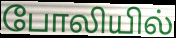
போலியில்